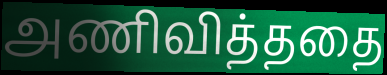
அணிவித்ததை